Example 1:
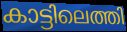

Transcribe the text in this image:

കാട്ടിലെത്തി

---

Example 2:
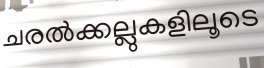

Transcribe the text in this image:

ചരൽക്കല്ലുകളിലൂടെ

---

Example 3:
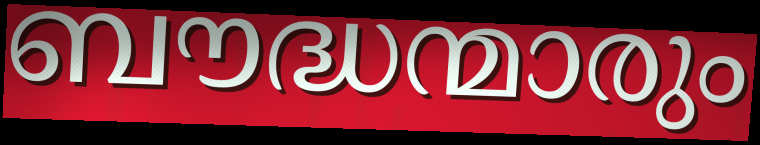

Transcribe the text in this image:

ബൗദ്ധന്മാരും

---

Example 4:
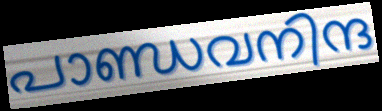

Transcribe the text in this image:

പാണ്ഡവനിന്ദ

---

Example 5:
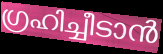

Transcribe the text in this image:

ഗ്രഹിച്ചീടാൻ